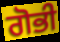
ਗੋਭੀ